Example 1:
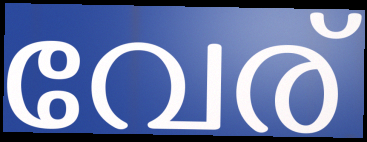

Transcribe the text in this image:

വേര്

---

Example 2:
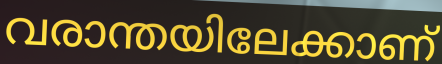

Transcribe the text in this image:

വരാന്തയിലേക്കാണ്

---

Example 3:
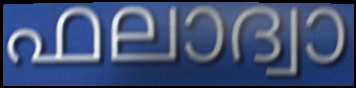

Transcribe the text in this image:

ഫലാദ്വാ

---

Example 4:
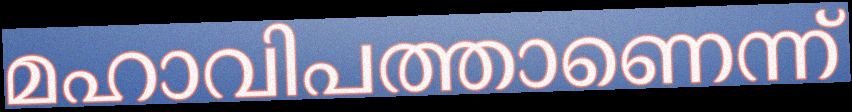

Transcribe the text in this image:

മഹാവിപത്താണെന്ന്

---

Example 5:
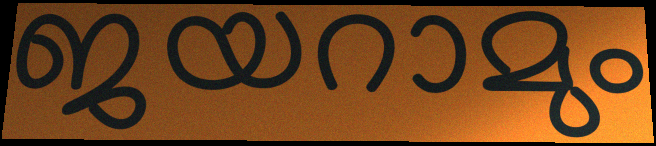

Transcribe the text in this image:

ജയറാമും